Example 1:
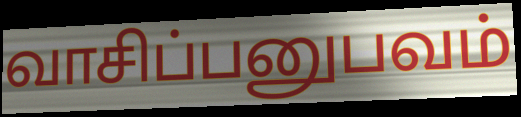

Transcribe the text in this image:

வாசிப்பனுபவம்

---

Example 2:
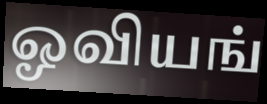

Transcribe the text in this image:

ஓவியங்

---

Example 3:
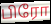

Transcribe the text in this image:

பிரோ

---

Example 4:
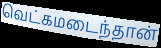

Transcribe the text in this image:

வெட்கமடைந்தான்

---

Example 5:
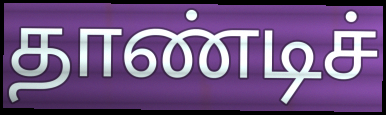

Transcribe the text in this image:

தாண்டிச்